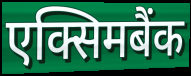
एक्सिमबैंक